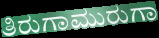
ತಿರುಗಾಮುರುಗಾ